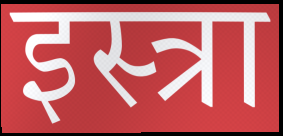
इस्त्रा